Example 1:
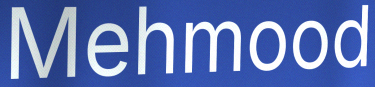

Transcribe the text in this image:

Mehmood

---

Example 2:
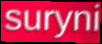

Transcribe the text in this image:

suryni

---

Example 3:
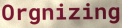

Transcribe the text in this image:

Orgnizing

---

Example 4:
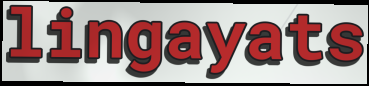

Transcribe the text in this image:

lingayats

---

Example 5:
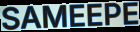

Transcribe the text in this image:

SAMEEPE